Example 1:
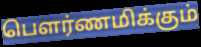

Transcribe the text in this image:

பௌர்ணமிக்கும்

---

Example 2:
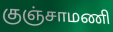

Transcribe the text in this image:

குஞ்சாமணி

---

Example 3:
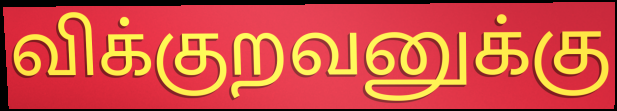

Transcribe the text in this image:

விக்குறவனுக்கு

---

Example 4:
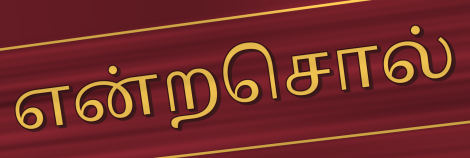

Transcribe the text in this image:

என்றசொல்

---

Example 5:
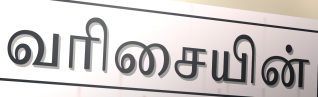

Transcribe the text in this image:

வரிசையின்